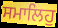
ਸਮਾਲਿਹੁ